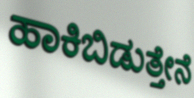
ಹಾಕಿಬಿಡುತ್ತೇನೆ